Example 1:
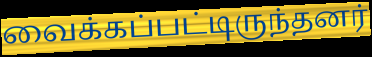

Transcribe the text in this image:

வைக்கப்பட்டிருந்தனர்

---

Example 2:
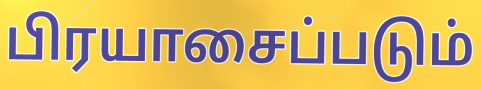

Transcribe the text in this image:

பிரயாசைப்படும்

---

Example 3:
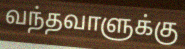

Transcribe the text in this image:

வந்தவாளுக்கு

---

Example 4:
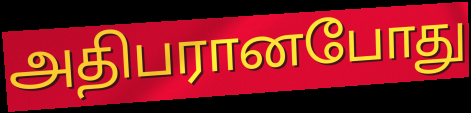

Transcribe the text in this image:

அதிபரானபோது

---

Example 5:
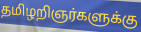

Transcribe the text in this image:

தமிழறிஞர்களுக்கு